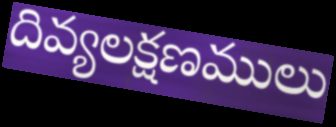
దివ్యలక్షణములు